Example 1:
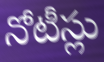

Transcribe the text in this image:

నోటీస్లు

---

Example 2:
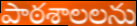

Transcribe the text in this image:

పాఠశాలలను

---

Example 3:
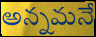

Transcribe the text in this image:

అన్నమనే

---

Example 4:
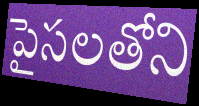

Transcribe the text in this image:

పైసలతోని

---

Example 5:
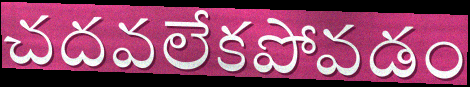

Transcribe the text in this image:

చదవలేకపోవడం